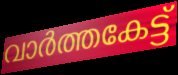
വാർത്തകേട്ട്